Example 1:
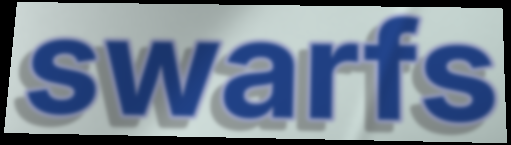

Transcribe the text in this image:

swarfs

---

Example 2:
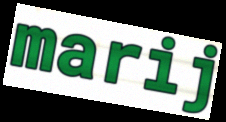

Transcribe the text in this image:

marij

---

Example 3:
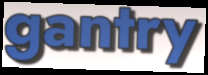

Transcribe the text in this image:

gantry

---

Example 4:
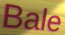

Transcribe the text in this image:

Bale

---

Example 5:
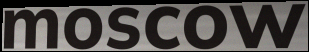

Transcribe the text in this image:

moscow